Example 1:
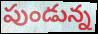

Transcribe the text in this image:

పుండున్న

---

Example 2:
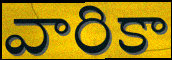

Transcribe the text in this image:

వారికా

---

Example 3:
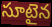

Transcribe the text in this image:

సూటైన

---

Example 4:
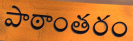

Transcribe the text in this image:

పాఠాంతరం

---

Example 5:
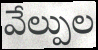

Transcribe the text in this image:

వేల్పుల